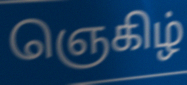
ஞெகிழ்